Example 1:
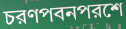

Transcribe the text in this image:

চরণপবনপরশে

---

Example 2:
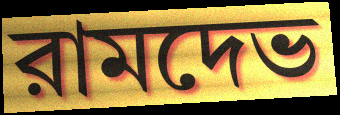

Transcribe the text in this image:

রামদেভ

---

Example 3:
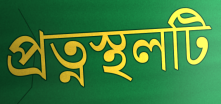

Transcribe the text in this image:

প্রত্নস্থলটি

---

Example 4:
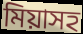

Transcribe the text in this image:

মিয়াসহ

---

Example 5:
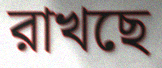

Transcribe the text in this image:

রাখছে